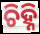
ଚିହ୍ନି